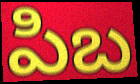
పిబ